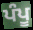
ਪੰਪੂ